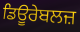
ਡਿਊਰੇਬਲਜ਼